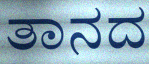
ತಾನದ